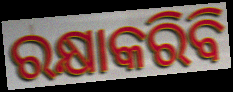
ରକ୍ଷାକରିବି